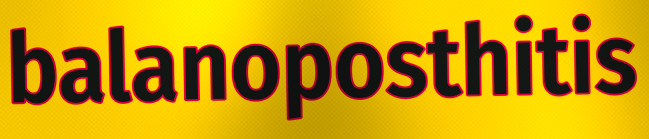
balanoposthitis